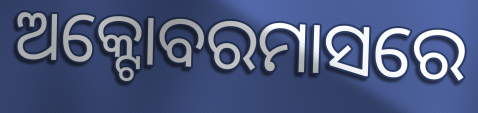
ଅକ୍ଟୋବରମାସରେ